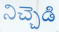
నిచ్చెడి